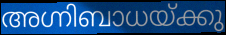
അഗ്നിബാധയ്ക്കു